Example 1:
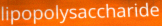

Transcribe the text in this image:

lipopolysaccharide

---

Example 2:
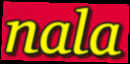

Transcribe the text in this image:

nala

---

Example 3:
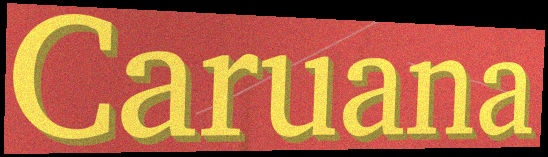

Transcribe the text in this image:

Caruana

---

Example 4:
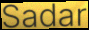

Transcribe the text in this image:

Sadar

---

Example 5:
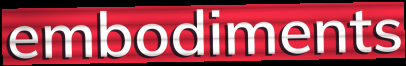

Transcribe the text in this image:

embodiments